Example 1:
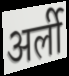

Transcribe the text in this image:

अर्ली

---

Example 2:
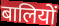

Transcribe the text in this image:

बालियों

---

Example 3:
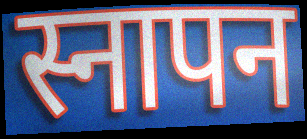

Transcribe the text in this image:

स्नापन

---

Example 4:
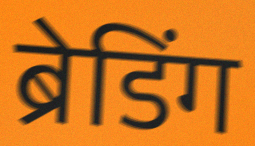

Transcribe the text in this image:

ब्रेडिंग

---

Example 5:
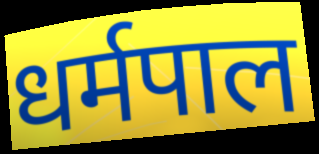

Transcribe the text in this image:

धर्मपाल